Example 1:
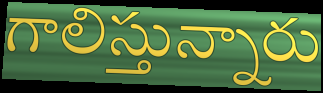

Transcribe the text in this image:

గాలిస్తున్నారు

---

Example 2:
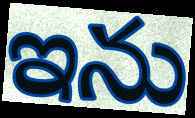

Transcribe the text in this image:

ఇను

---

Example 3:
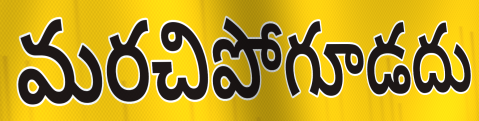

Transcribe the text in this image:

మరచిపోగూడదు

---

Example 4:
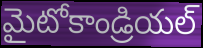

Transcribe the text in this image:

మైటోకాండ్రియల్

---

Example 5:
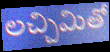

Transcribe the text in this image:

లచ్చిమితో